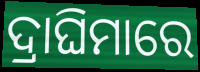
ଦ୍ରାଘିମାରେ